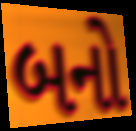
બનો